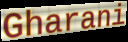
Gharani